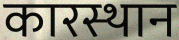
कारस्थान